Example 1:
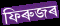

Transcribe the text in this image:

ফিৰুজৰ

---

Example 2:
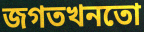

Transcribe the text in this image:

জগতখনতো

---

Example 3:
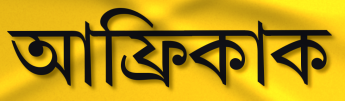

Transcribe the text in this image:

আফ্ৰিকাক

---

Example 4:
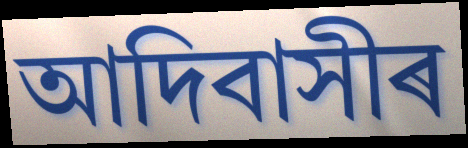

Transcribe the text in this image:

আদিবাসীৰ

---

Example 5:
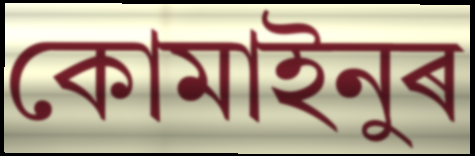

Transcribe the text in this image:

কোমাইনুৰ